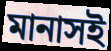
মানাসই